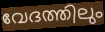
വേദത്തിലും